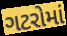
ગટરોમાં